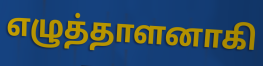
எழுத்தாளனாகி